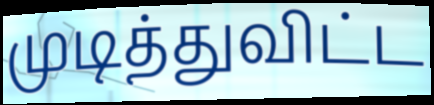
முடித்துவிட்ட